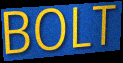
BOLT